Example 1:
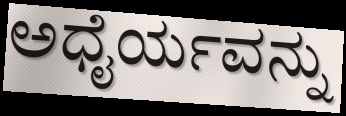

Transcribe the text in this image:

ಅಧೈರ್ಯವನ್ನು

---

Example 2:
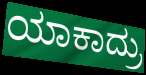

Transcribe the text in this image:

ಯಾಕಾದ್ರು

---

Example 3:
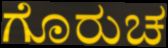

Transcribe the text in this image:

ಗೊರುಚ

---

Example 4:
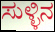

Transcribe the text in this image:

ಸುಳ್ಳಿನ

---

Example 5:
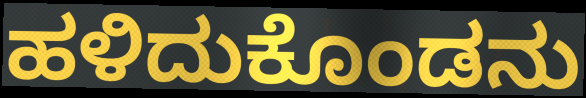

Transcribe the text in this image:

ಹಳಿದುಕೊಂಡನು